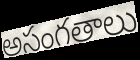
అసంగతాలు